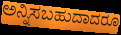
ಅನ್ನಿಸಬಹುದಾದರೂ